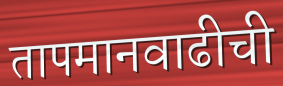
तापमानवाढीची